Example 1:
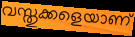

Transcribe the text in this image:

വസ്തുക്കളെയാണ്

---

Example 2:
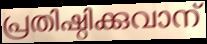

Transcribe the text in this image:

പ്രതിഷ്ഠിക്കുവാന്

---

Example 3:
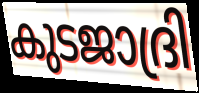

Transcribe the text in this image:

കുടജാദ്രി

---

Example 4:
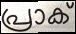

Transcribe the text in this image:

പ്രാക്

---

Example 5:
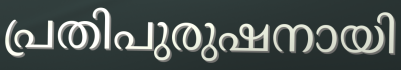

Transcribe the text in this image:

പ്രതിപുരുഷനായി